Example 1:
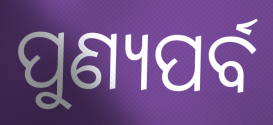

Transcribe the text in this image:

ପୁଣ୍ୟପର୍ବ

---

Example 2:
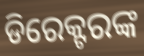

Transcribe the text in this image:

ଡିରେକ୍ଟରଙ୍କ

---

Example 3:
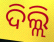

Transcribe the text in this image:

ଦିଲ୍ଲି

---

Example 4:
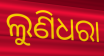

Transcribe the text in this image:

ଲୁଣିଧରା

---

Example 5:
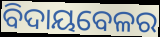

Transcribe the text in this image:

ବିଦାୟବେଳର